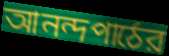
আনন্দপাঠের